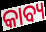
କାବ୍ୟ